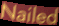
Nailed